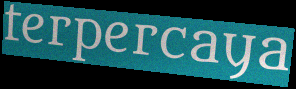
terpercaya